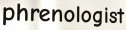
phrenologist